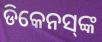
ଡିକେନସ୍‌ଙ୍କ